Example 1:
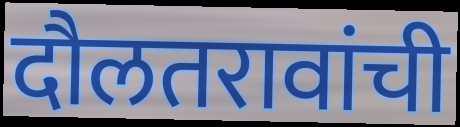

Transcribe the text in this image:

दौलतरावांची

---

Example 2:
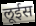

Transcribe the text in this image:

लूईस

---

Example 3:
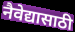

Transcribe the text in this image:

नैवेद्यासाठी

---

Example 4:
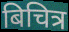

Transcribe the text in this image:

बिचित्र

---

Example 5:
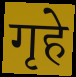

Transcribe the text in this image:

गृहे